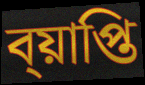
ব্য়াপ্তি